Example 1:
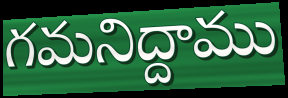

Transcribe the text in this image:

గమనిద్దాము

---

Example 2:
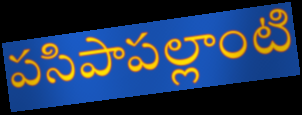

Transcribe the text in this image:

పసిపాపల్లాంటి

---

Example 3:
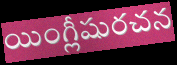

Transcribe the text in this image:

యింగ్లీషురచన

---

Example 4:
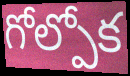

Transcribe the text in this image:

గోల్పోక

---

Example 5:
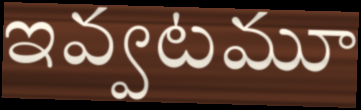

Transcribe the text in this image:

ఇవ్వటమూ